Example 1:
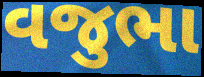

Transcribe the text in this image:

વજુભા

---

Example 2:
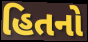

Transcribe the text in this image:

હિતનો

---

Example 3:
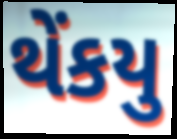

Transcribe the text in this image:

થેંકયુ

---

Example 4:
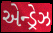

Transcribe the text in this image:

એન્ડ્રેઝ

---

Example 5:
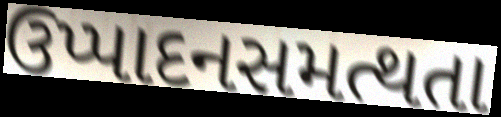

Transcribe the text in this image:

ઉપ્પાદનસમત્થતા